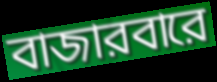
বাজারবারে